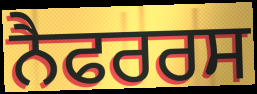
ਨੈਫਰਰਸ